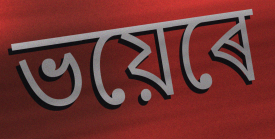
ভয়েৰে